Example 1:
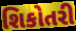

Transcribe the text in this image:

શિકોતરી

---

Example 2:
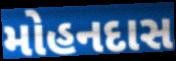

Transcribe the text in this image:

મોહનદાસ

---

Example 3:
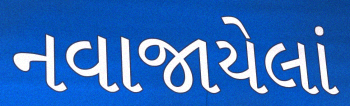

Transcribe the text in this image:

નવાજાયેલાં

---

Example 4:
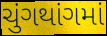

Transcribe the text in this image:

ચુંગથાંગમાં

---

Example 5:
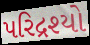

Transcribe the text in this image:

પરિદ્રશ્યો